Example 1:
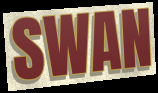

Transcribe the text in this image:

SWAN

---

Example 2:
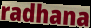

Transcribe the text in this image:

radhana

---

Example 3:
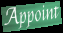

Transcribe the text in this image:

Appoint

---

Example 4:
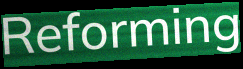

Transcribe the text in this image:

Reforming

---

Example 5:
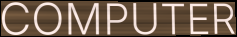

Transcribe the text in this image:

COMPUTER